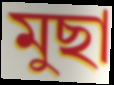
মুছা